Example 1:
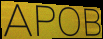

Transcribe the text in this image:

APOB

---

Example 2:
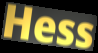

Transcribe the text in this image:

Hess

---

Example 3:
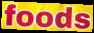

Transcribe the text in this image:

foods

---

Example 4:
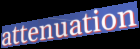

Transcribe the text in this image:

attenuation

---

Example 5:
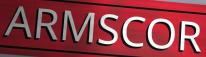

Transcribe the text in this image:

ARMSCOR